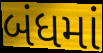
બંધમાં